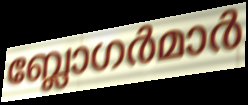
ബ്ലോഗർമാർ